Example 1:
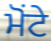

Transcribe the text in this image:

ਮੋਂਟੇ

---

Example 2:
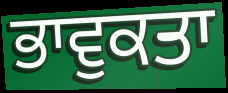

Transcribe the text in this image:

ਭਾਵੁਕਤਾ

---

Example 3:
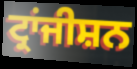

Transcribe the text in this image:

ਟ੍ਰਾਂਜੀਸ਼ਨ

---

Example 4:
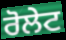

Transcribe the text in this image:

ਰੋਲੇਟ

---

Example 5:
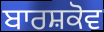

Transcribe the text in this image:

ਬਾਰਸ਼ਕੋਵ